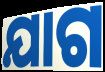
ଯାଗ